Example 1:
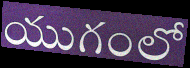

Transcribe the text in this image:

యుగంలో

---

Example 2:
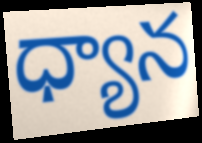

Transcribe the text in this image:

ధ్యాన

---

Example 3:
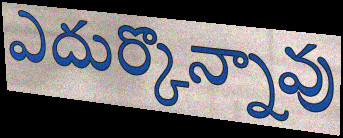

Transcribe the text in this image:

ఎదుర్కొన్నావు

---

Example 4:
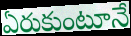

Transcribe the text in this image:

ఏరుకుంటూనే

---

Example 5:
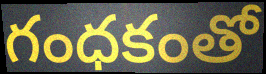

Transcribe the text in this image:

గంధకంతో